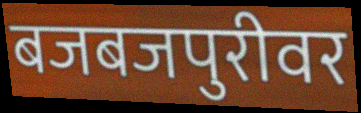
बजबजपुरीवर